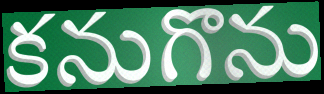
కనుగొను